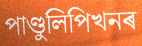
পাণ্ডুলিপিখনৰ